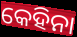
କେହିନା